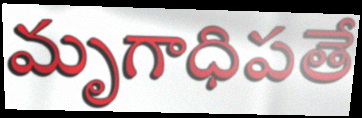
మృగాధిపతే